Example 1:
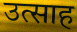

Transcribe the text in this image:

उत्साह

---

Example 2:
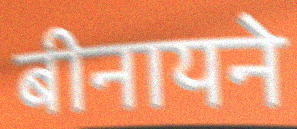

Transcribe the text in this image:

बीनायने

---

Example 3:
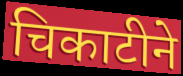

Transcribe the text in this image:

चिकाटीने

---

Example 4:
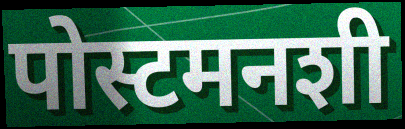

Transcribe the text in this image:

पोस्टमनशी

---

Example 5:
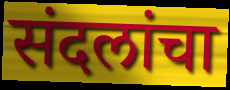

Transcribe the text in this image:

संदलांचा